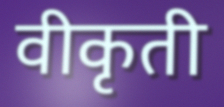
वीकृती